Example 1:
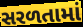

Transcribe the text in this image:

સરળતામાં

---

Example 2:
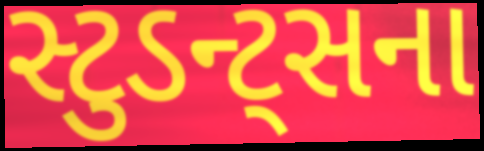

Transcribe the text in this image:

સ્ટુડન્ટ્સના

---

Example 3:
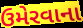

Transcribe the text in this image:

ઉમેરવાના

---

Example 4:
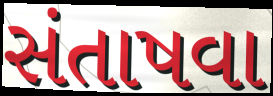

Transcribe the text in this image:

સંતાષવા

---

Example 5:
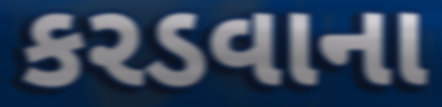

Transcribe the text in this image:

કરડવાના